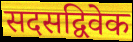
सदसद्विवेक